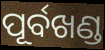
ପୂର୍ବଖଣ୍ଡ